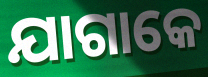
ଯାଗାକେ